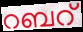
റബറ്